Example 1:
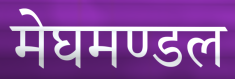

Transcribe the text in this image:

मेघमण्डल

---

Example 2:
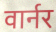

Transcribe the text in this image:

वार्नर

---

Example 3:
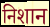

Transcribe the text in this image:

निशान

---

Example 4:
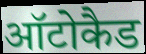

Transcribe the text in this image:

ऑटोकैड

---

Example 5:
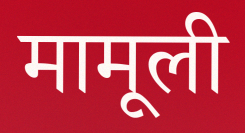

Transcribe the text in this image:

मामूली